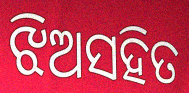
ଝିଅସହିତ